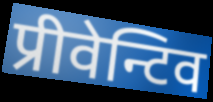
प्रीवेन्टिव